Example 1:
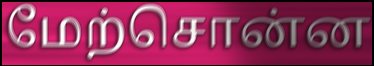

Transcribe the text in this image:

மேற்சொன்ன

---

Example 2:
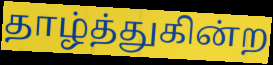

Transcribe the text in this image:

தாழ்த்துகின்ற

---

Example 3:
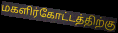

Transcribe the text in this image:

மகளிர்கோட்டத்திற்கு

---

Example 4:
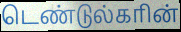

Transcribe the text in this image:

டெண்டுல்கரின்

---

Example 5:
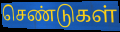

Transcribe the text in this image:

செண்டுகள்